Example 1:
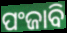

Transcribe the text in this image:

ପଂଜାବି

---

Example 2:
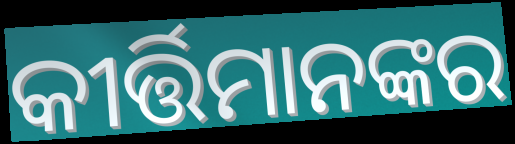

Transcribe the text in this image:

କୀର୍ତ୍ତିମାନଙ୍କର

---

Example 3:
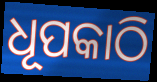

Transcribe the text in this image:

ଧୂପକାଠି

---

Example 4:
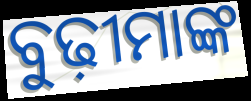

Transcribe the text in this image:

ବୁଢ଼ୀମାଙ୍କ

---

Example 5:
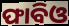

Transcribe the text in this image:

ଫାବିଓ